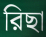
রিছা